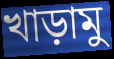
খাড়ামু